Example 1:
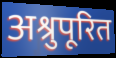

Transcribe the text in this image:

अश्रुपूरित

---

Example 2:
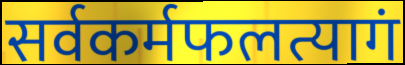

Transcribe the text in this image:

सर्वकर्मफलत्यागं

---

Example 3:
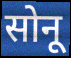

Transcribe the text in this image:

सोनू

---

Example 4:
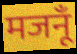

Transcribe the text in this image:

मजनूँ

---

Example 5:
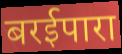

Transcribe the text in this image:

बरईपारा